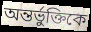
অন্তর্ভুক্তিকে